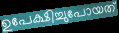
ഉപേക്ഷിച്ചുപോയത്